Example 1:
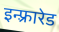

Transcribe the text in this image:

इन्फ़्रारेड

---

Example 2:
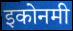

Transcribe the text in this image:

इकोनमी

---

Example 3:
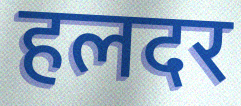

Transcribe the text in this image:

हलदर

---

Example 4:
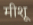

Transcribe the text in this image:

मीशू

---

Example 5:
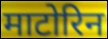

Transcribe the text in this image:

माटोरिन